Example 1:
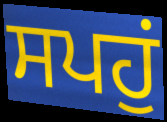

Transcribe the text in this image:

ਸਪਹੁਂ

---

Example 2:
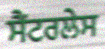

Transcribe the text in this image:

ਸੈਂਟਰਲੇਸ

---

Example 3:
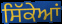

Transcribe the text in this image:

ਸਿੱਕੇਆਂ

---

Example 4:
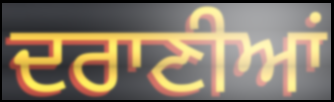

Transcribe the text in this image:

ਦਰਾਣੀਆਂ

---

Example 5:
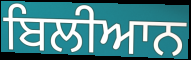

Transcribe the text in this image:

ਬਿਲੀਆਨ